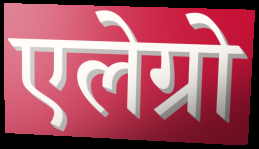
एलेग्रो